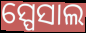
ସ୍ପେସାଲ